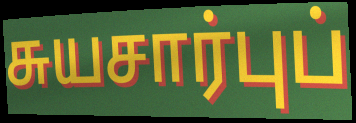
சுயசார்புப்